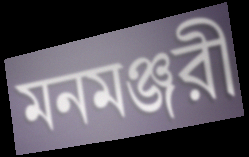
মনমঞ্জরী